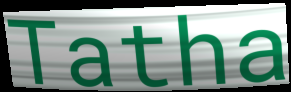
Tatha